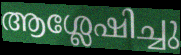
ആശ്ലേഷിച്ചു